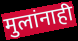
मुलांनाही